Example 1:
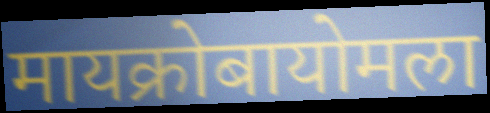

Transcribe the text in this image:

मायक्रोबायोमला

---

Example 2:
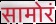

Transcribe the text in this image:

सामोरं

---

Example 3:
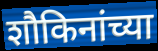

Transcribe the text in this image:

शौकिनांच्या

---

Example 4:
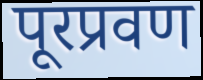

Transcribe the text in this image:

पूरप्रवण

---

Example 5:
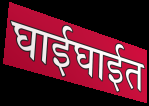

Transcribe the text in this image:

घाईघाईत